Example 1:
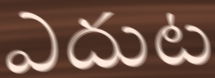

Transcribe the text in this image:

ఎదుట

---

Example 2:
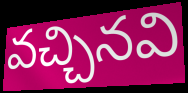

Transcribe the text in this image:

వచ్చినవి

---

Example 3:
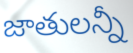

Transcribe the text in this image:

జాతులన్నీ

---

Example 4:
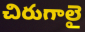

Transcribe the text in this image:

చిరుగాలై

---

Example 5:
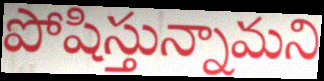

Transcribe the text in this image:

పోషిస్తున్నామని